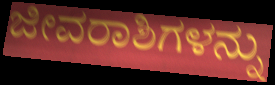
ಜೀವರಾಶಿಗಳನ್ನು